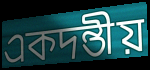
একদন্তীয়